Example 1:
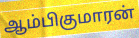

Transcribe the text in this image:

ஆம்பிகுமாரன்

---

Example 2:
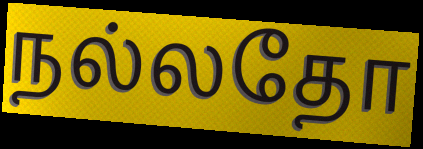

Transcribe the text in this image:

நல்லதோ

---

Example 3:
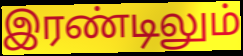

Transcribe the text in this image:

இரண்டிலும்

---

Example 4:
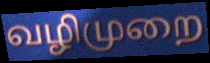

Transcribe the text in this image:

வழிமுறை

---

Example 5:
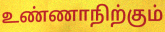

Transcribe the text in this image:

உண்ணாநிற்கும்